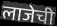
लाजेची